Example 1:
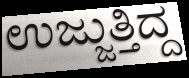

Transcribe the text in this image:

ಉಜ್ಜುತ್ತಿದ್ದ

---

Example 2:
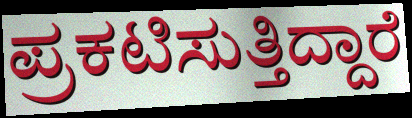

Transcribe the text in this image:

ಪ್ರಕಟಿಸುತ್ತಿದ್ದಾರೆ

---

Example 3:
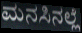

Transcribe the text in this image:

ಮನಸಿನಲ್ಲೆ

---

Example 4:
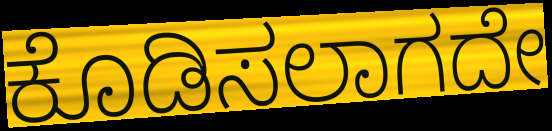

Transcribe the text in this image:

ಕೊಡಿಸಲಾಗದೇ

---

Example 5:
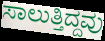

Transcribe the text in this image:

ಸಾಲುತ್ತಿದ್ದವು